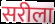
सरीला